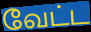
வேட்ட